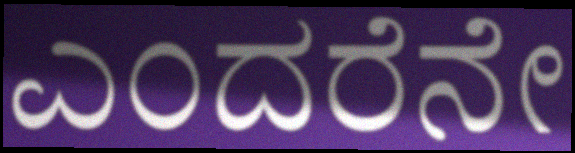
ಎಂದರೆನೇ